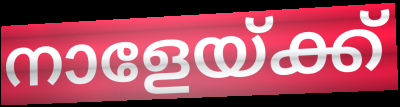
നാളേയ്ക്ക്